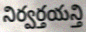
నిర్వర్తయన్తి